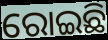
ରୋଇଛି